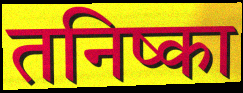
तनिष्का